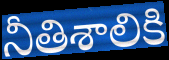
నీతిశాలికి